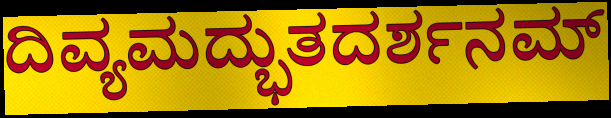
ದಿವ್ಯಮದ್ಭುತದರ್ಶನಮ್